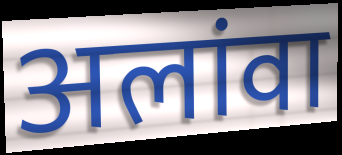
अलांवा